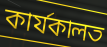
কাৰ্যকালত